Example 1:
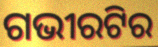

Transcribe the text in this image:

ଗଭୀରଟିର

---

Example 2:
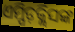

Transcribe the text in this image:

ଏମ୍ପିଡ଼କ୍ଲିସଙ୍କ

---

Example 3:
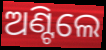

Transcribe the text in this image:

ଅଣ୍ଟିଲେ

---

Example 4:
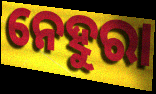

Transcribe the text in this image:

ନେହୁରା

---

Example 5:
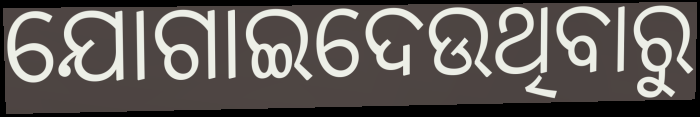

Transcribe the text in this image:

ଯୋଗାଇଦେଉଥିବାରୁ